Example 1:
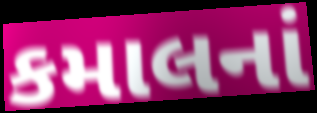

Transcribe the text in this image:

કમાલનાં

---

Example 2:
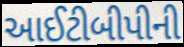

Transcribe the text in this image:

આઈટીબીપીની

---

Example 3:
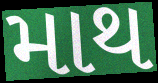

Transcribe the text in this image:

માથ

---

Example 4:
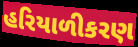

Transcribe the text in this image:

હરિયાળીકરણ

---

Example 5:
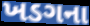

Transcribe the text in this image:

ખડગના